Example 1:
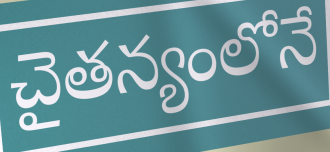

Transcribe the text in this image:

చైతన్యంలోనే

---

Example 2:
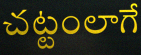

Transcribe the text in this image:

చట్టంలాగే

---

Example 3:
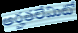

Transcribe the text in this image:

అర్హతలేమిటో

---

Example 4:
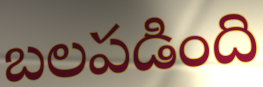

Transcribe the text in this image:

బలపడింది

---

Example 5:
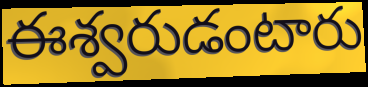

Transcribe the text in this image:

ఈశ్వరుడంటారు